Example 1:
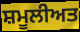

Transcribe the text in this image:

ਸ਼ਮੂਲੀਅਤ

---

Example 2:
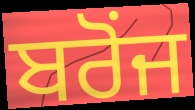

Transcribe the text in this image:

ਬਰੋਂਜ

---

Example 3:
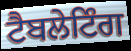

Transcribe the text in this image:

ਟੈਬਲੇਟਿੰਗ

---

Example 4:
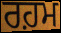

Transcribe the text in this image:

ਰਹ਼ਮ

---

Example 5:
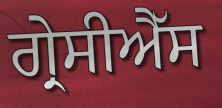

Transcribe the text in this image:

ਗ੍ਰੇਸੀਐੱਸ